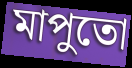
মাপুতো